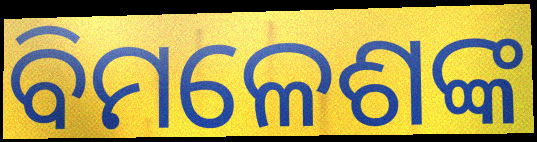
ବିମଳେଶଙ୍କ